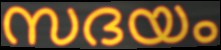
സദയം